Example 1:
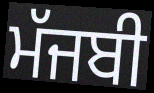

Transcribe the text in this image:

ਮੱਜਬੀ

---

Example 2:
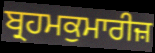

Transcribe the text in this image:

ਬ੍ਰਹਮਕੁਮਾਰੀਜ਼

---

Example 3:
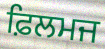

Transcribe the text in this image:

ਫ਼ਿਲਮਜ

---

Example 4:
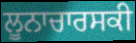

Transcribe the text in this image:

ਲੂਨਾਚਾਰਸਕੀ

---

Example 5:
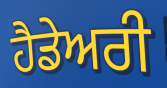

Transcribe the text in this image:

ਹੈਡੇਅਰੀ